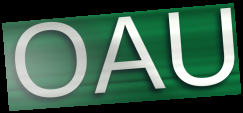
OAU